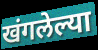
खंगलेल्या